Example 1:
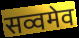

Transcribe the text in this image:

सव्वमेव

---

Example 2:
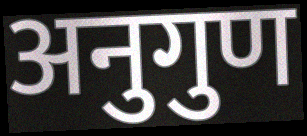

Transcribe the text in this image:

अनुगुण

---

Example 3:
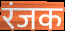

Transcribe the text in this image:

रंजक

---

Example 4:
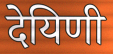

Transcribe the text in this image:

देयिणी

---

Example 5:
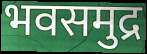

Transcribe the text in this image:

भवसमुद्र